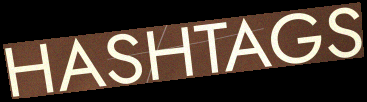
HASHTAGS